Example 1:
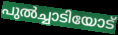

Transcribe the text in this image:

പുൽച്ചാടിയോട്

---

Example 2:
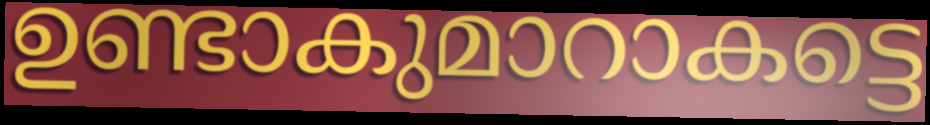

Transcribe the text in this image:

ഉണ്ടാകുമാറാകട്ടെ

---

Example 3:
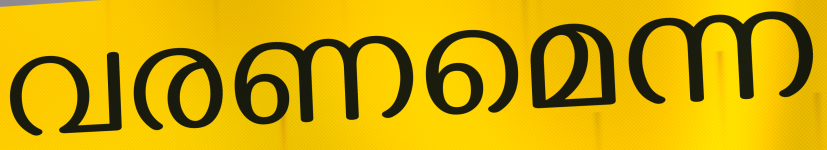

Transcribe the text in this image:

വരണമെന്ന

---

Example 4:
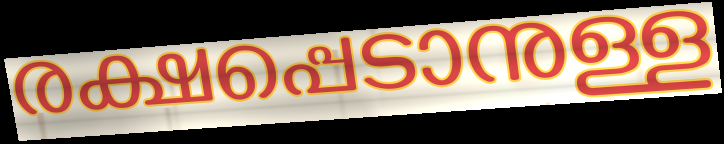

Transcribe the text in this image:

രക്ഷപ്പെടാനുള്ള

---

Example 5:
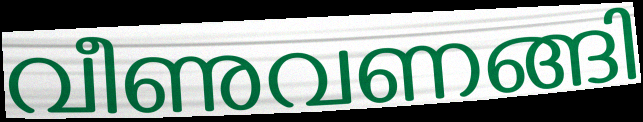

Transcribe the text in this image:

വീണുവണങ്ങി